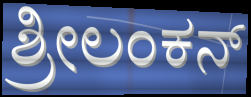
ಶ್ರೀಲಂಕನ್